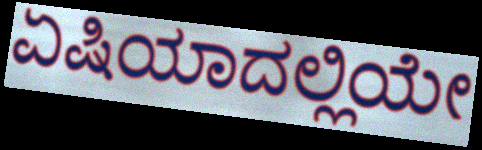
ಏಷಿಯಾದಲ್ಲಿಯೇ